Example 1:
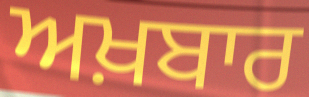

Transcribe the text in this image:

ਅਖ਼ਬਾਰ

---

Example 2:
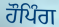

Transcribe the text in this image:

ਹੌਪਿੰਗ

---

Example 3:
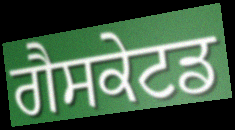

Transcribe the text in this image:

ਗੈਸਕੇਟਡ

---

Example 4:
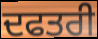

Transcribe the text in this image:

ਦਫਤਰੀ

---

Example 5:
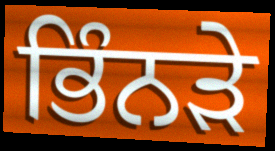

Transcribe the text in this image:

ਭਿੰਨੜੇ